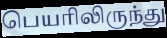
பெயரிலிருந்து